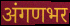
अंगणभर